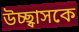
উচ্ছ্বাসকে